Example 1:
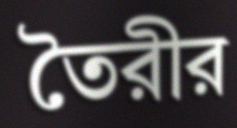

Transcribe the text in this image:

তৈরীর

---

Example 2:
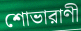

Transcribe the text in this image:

শোভারাণী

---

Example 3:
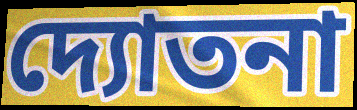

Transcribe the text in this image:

দ্যোতনা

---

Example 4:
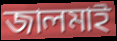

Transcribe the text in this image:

জালমাই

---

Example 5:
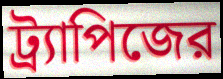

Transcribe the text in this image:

ট্র্যাপিজের